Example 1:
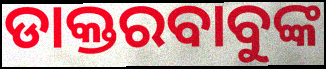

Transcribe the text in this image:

ଡାକ୍ତରବାବୁଙ୍କ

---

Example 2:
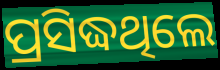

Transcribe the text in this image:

ପ୍ରସିଦ୍ଧଥିଲେ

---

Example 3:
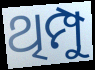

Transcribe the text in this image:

ଥିମ୍ପୁ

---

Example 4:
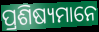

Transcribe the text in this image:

ପ୍ରଶିଷ୍ୟମାନେ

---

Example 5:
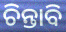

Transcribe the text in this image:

ଚିନ୍ତାବି